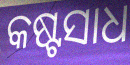
କଷ୍ଟସାଧ